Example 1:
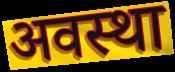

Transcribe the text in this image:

अवस्था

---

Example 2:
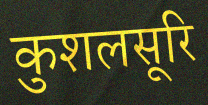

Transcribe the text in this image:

कुशलसूरि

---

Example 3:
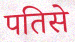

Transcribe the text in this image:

पतिसे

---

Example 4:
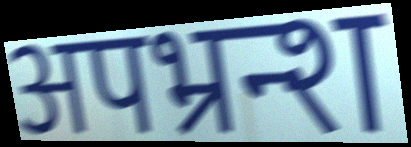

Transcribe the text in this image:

अपभ्रन्श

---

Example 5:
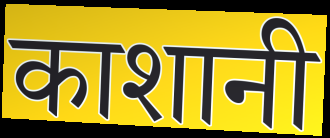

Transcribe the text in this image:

काशानी